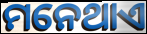
ମନେଥାଏ